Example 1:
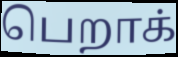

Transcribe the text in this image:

பெறாக்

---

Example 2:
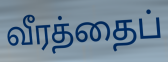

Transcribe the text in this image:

வீரத்தைப்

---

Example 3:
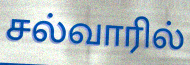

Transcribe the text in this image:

சல்வாரில்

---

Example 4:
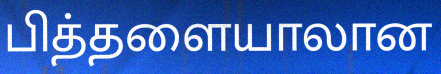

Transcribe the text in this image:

பித்தளையாலான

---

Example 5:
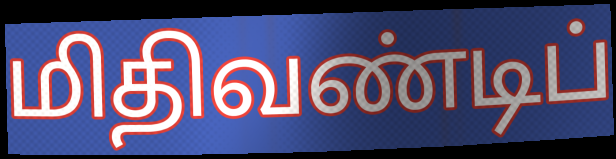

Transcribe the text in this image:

மிதிவண்டிப்